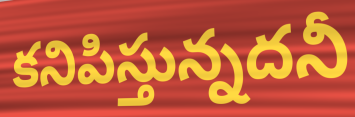
కనిపిస్తున్నదనీ